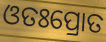
ଓତଃପ୍ରୋତ